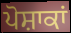
ਪੋਸ਼ਾਕਾਂ